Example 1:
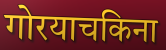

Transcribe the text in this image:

गोरयाचकिना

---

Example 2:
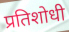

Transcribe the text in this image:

प्रतिशोधी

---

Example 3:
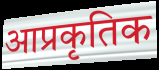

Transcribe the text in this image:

आप्रकृतिक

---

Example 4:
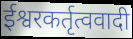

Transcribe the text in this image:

ईश्वरकर्तृत्ववादी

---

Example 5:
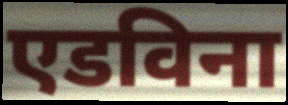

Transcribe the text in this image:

एडविना